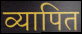
व्यापित